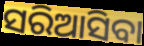
ସରିଆସିବା